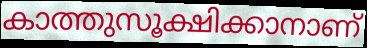
കാത്തുസൂക്ഷിക്കാനാണ്